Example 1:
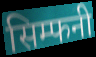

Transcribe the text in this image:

सिम्फनी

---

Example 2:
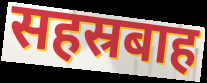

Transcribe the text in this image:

सहस्रबाह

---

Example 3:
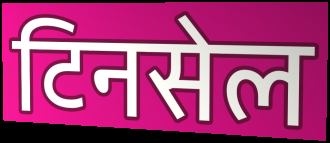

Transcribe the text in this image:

टिनसेल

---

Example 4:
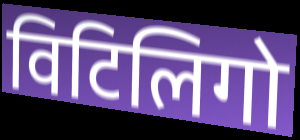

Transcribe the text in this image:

विटिलिगो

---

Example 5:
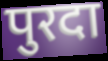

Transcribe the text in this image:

पुरदा